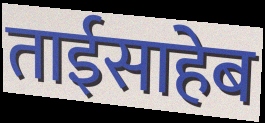
ताईसाहेब